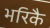
भरिकै